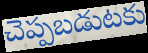
చెప్పబడుటకు